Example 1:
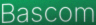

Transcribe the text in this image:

Bascom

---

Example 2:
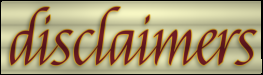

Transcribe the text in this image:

disclaimers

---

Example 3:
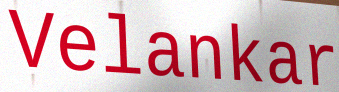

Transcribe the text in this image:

Velankar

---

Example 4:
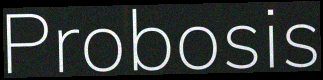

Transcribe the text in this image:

Probosis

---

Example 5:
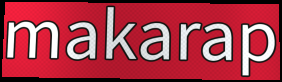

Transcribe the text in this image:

makarap